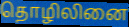
தொழிலினை